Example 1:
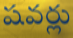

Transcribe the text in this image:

షవర్లు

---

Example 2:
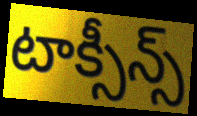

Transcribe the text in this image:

టాక్సీన్స్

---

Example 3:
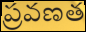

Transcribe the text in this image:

ప్రవణత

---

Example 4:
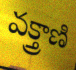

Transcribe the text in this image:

వక్త్రాణి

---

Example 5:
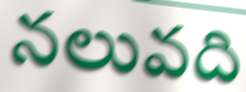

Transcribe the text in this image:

నలువది